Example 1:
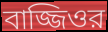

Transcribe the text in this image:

বাজ্জিওর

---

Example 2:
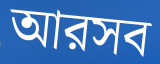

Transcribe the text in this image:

আরসব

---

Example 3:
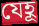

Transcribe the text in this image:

যেহূ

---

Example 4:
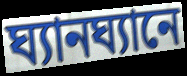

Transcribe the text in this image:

ঘ্যানঘ্যানে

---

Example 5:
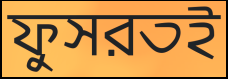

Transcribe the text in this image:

ফুসরতই